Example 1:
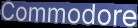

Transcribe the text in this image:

Commodore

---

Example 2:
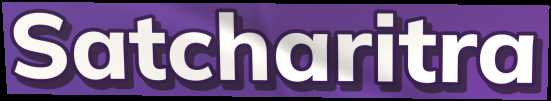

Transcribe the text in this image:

Satcharitra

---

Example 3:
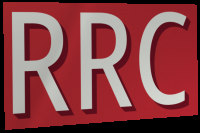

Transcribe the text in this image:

RRC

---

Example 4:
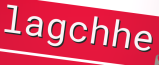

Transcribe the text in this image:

lagchhe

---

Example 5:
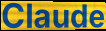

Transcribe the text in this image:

Claude